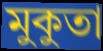
মুকুতা